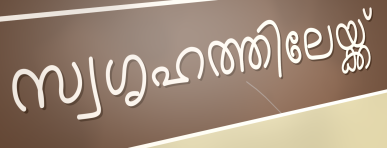
സ്വഗൃഹത്തിലേയ്ക്ക്